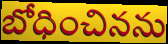
బోధించినను